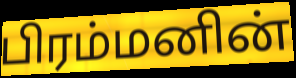
பிரம்மனின்